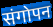
संगोपन